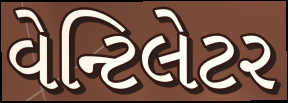
વેન્ટિલેટર